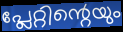
പ്ലേറ്റിന്റെയും